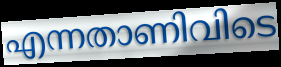
എന്നതാണിവിടെ